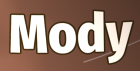
Mody